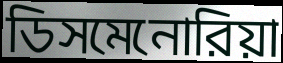
ডিসমেনোরিয়া